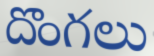
దొంగలు